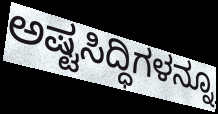
ಅಷ್ಟಸಿದ್ಧಿಗಳನ್ನೂ